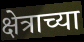
क्षेत्राच्या